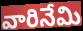
వారినేమి